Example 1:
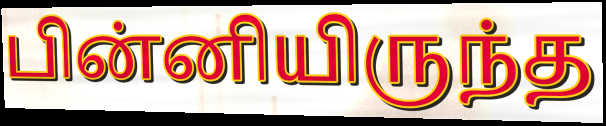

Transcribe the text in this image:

பின்னியிருந்த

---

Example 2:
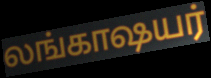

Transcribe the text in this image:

லங்காஷயர்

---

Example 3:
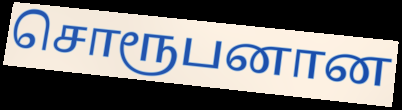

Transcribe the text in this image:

சொரூபனான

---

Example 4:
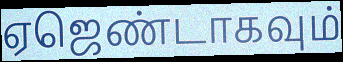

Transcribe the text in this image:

ஏஜெண்டாகவும்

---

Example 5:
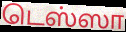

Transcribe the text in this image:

டெஸ்ஸா